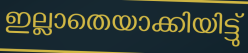
ഇല്ലാതെയാക്കിയിട്ടു്